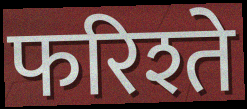
फरिश्ते